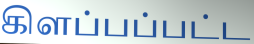
கிளப்பப்பட்ட